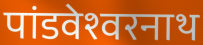
पांडवेश्वरनाथ